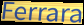
Ferrara